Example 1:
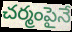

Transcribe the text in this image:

చర్మంపైనే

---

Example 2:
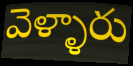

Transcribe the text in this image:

వెళ్ళారు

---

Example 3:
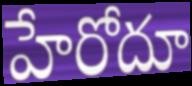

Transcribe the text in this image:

హేరోదూ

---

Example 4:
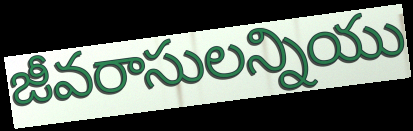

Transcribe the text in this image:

జీవరాసులన్నియు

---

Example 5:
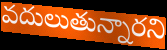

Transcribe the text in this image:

వదులుతున్నారని